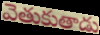
వెతుకుతాడు